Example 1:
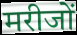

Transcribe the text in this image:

मरीजों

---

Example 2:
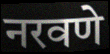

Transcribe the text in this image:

नरवणे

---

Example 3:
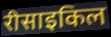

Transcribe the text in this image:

रीसाइकिल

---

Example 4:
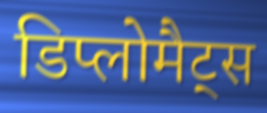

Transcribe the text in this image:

डिप्लोमैट्स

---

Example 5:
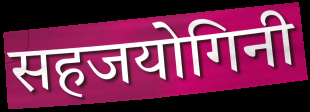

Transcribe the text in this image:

सहजयोगिनी